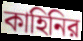
কাহিনির